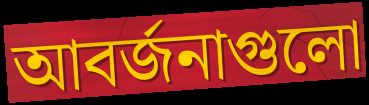
আবর্জনাগুলো